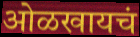
ओळखायचं